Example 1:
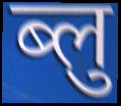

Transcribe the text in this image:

ब्लु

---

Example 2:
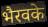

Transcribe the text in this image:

भैरवके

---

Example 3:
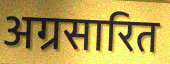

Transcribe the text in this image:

अग्रसारित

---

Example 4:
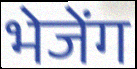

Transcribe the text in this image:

भेजेंग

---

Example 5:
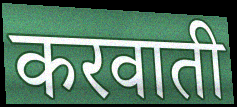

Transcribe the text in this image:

करवाती